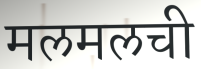
मलमलची